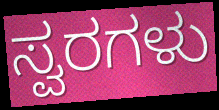
ಸ್ವರಗಳು